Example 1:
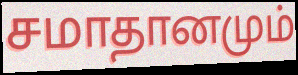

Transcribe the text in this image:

சமாதானமும்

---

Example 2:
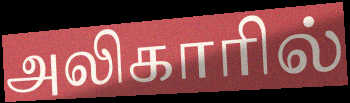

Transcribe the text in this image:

அலிகாரில்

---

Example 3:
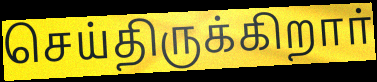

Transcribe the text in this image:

செய்திருக்கிறார்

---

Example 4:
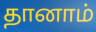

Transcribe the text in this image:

தானாம்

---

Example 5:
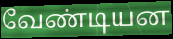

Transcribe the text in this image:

வேண்டியன